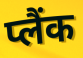
प्लैंक